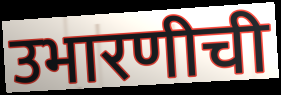
उभारणीची